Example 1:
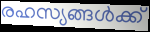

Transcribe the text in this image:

രഹസ്യങ്ങൾക്ക്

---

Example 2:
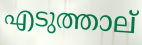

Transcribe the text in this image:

എടുത്താല്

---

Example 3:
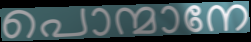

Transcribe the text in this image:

പൊന്മാനേ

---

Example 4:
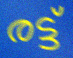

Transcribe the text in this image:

രട്ട്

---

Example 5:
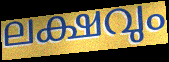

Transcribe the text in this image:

ലക്ഷവും